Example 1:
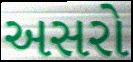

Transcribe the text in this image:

અસરો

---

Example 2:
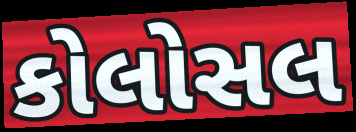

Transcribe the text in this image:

કોલોસલ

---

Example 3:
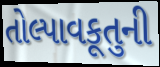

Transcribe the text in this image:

તોલ્પાવકૂતુની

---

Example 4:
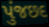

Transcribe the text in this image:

પુંજછદ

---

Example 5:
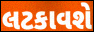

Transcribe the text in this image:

લટકાવશે